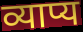
व्याप्य